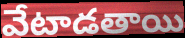
వేటాడతాయి